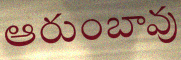
ఆరుంబావు